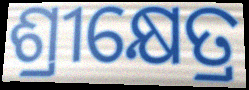
ଶ୍ରୀକ୍ଷେତ୍ର